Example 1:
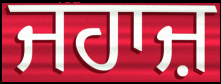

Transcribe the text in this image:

ਜਹਾਜ਼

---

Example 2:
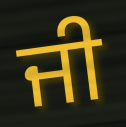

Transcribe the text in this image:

ਜੀ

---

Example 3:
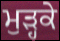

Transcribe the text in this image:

ਮੁੜ੍ਹਕੇ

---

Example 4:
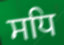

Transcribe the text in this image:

ਸਧਿ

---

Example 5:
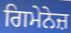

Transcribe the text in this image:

ਗਿਮੇਨੇਜ਼